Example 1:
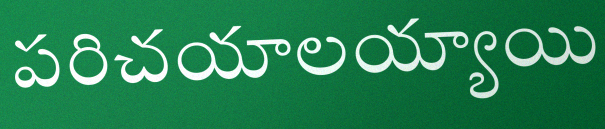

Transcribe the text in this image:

పరిచయాలయ్యాయి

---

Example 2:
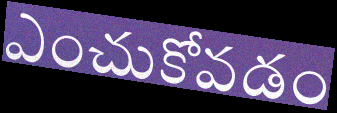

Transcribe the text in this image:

ఎంచుకోవడం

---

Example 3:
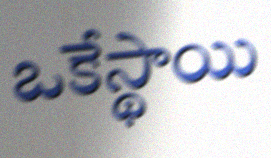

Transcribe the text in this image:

ఒకేస్థాయి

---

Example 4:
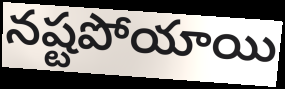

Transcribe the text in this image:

నష్టపోయాయి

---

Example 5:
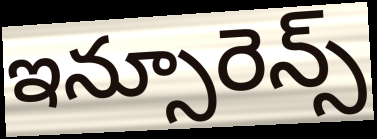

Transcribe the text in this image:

ఇన్సూరెన్స్